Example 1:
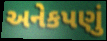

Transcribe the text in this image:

અનેકપણું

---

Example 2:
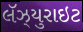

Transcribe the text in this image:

લૅઝ્યુરાઇટ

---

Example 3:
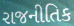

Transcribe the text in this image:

રાજનીતિક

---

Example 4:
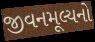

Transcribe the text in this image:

જીવનમૂલ્યનો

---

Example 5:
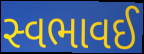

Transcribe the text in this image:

સ્વભાવઈ